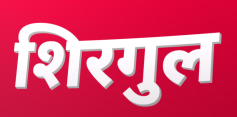
शिरगुल